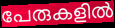
പേരുകളിൽ